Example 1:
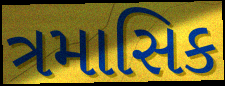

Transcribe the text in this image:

ત્રમાસિક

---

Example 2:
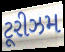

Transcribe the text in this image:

ટૂરીઝમ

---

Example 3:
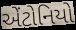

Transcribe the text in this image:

એંટોનિયો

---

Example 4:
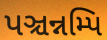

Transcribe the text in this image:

પઞ્ચન્નમ્પિ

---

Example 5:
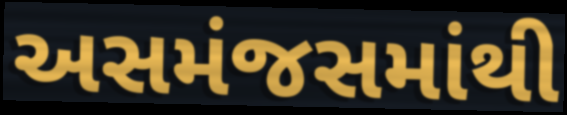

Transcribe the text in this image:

અસમંજસમાંથી